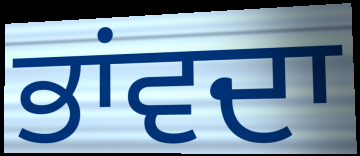
ਭਾਂਵਦਾ